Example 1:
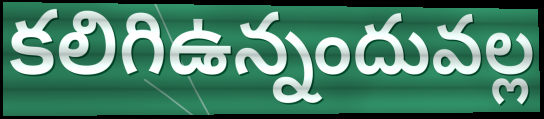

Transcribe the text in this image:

కలిగిఉన్నందువల్ల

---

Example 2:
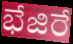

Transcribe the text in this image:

భేజిరే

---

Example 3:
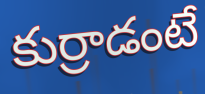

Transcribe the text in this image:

కుర్రాడంటే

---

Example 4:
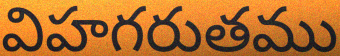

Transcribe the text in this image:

విహగరుతము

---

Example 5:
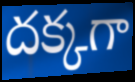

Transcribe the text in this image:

దక్కగా